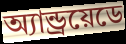
অ্যান্ড্রয়েডে